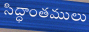
సిద్ధాంతములు